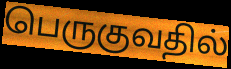
பெருகுவதில்